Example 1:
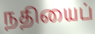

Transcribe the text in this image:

நதியைப்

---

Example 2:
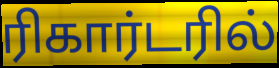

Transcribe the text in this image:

ரிகார்டரில்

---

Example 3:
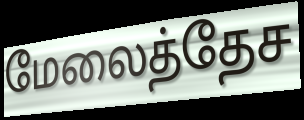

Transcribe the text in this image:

மேலைத்தேச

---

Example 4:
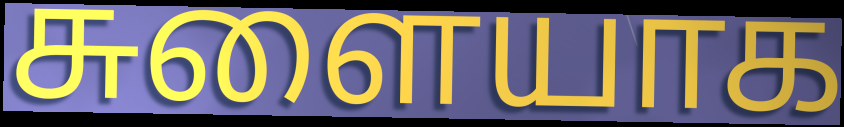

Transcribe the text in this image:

சுளையாக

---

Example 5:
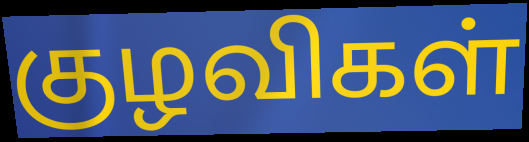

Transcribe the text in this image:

குழவிகள்